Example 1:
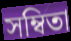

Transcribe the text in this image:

সম্বিতা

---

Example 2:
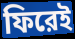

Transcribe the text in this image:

ফিরেই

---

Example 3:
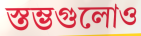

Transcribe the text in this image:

স্তম্ভগুলোও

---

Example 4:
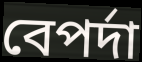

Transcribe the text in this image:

বেপর্দা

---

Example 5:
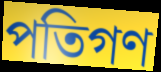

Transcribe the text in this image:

পতিগণ